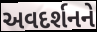
અવદર્શનને